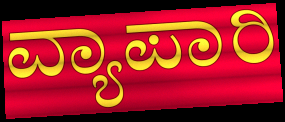
ವ್ಯಾಪಾರಿ